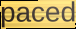
paced